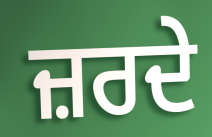
ਜ਼ਰਦੇ